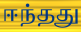
ஈந்தது